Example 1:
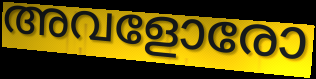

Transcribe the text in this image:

അവളോരോ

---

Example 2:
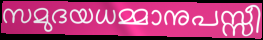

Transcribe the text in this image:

സമുദയധമ്മാനുപസ്സീ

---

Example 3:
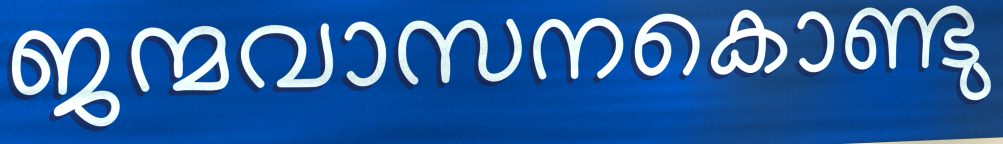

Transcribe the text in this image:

ജന്മവാസനകൊണ്ടു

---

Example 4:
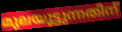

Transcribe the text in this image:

മുലയൂട്ടുന്നതിന്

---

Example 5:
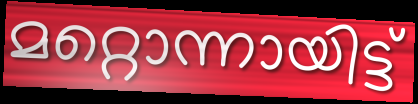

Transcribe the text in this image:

മറ്റൊന്നായിട്ട്